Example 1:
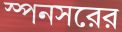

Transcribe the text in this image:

স্পনসরের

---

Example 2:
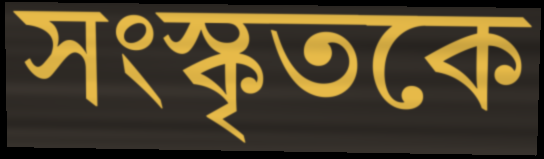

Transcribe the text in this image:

সংস্কৃতকে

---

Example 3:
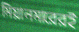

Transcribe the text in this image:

মিয়ানমারেরই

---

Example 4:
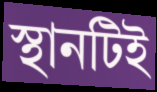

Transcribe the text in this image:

স্থানটিই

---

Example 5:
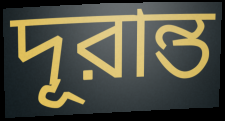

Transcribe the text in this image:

দূরান্ত